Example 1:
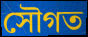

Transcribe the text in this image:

সৌগত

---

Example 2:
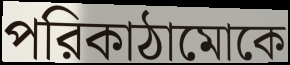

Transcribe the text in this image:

পরিকাঠামোকে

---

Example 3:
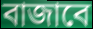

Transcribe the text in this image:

বাজাবে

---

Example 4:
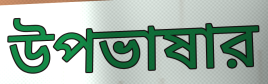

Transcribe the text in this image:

উপভাষার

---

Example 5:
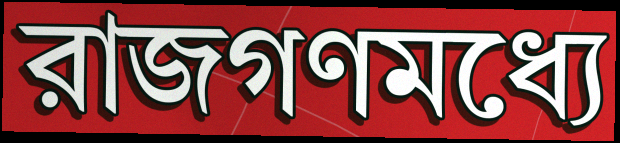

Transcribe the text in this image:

রাজগণমধ্যে